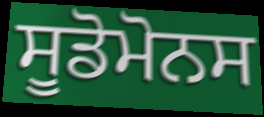
ਸੂਡੋਮੋਨਸ